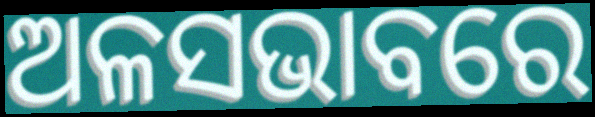
ଅଳସଭାବରେ